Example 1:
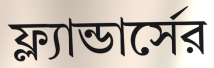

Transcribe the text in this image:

ফ্ল্যান্ডার্সের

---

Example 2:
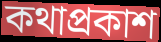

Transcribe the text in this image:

কথাপ্রকাশ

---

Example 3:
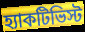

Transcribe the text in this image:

হ্যাকটিভিস্ট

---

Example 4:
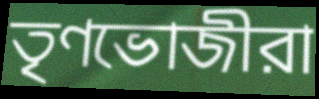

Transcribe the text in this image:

তৃণভোজীরা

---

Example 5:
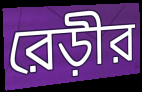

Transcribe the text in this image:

রেড়ীর